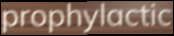
prophylactic